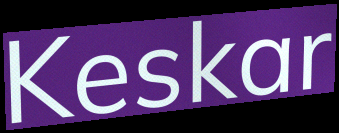
Keskar